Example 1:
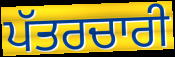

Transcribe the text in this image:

ਪੱਤਰਚਾਰੀ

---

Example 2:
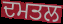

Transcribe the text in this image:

ਦਮਤਲ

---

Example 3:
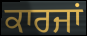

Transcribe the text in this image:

ਕਾਰਜਾਂ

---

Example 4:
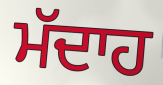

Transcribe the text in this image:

ਮੱਦਾਹ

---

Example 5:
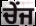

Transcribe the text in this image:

ਚੇਂਜ